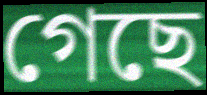
গেছে